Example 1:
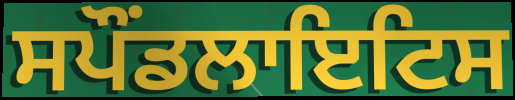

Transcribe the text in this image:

ਸਪੌਂਡਲਾਇਟਿਸ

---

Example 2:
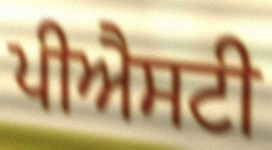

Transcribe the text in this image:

ਪੀਐਸਟੀ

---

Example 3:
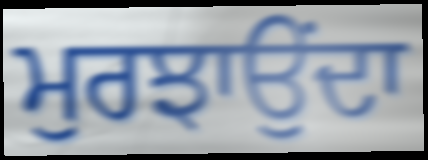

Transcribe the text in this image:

ਮੁਰਝਾਉਂਦਾ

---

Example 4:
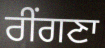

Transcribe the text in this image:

ਰੀਂਗਣਾ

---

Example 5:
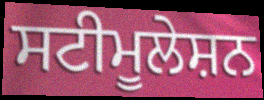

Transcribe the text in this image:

ਸਟੀਮੂਲੇਸ਼ਨ